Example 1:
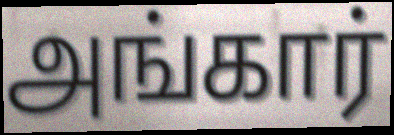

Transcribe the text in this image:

அங்கார்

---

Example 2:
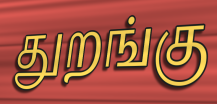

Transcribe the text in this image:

துறங்கு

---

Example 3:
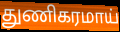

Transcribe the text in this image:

துணிகரமாய்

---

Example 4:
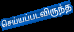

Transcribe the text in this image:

செய்யப்படவிருந்த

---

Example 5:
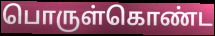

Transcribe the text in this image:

பொருள்கொண்ட